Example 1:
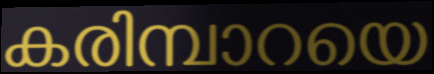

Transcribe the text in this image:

കരിമ്പാറയെ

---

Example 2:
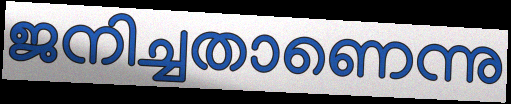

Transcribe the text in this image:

ജനിച്ചതാണെന്നു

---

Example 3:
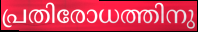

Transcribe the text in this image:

പ്രതിരോധത്തിനു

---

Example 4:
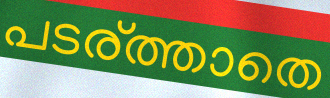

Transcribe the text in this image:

പടര്ത്താതെ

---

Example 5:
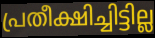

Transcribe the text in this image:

പ്രതീക്ഷിച്ചിട്ടില്ല